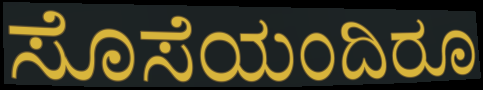
ಸೊಸೆಯಂದಿರೂ